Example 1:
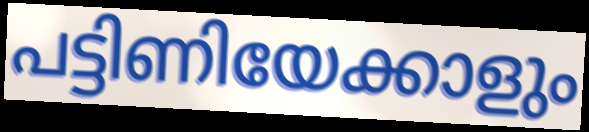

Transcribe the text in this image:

പട്ടിണിയേക്കാളും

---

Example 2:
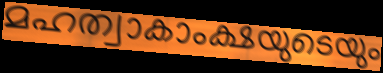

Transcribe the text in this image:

മഹത്വാകാംക്ഷയുടെയും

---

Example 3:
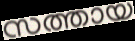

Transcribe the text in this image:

സത്തായ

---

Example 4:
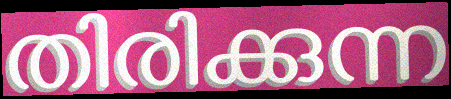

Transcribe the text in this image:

തിരിക്കുന്ന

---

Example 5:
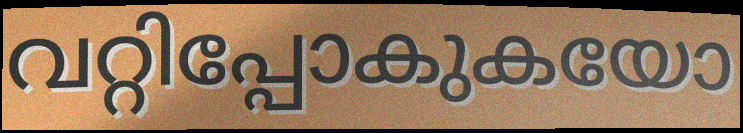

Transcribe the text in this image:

വറ്റിപ്പോകുകയോ